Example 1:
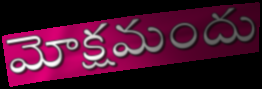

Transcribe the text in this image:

మోక్షమందు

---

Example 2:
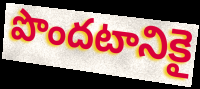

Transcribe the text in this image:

పొందటానికై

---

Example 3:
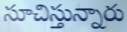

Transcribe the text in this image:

సూచిస్తున్నారు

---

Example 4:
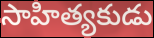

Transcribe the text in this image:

సాహిత్యకుడు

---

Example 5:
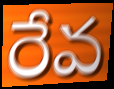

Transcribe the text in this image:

రేవ